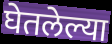
घेतलेल्या